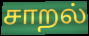
சாறல்